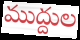
ముద్దుల